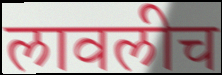
लावलीच